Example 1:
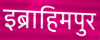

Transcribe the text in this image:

इब्राहिमपुर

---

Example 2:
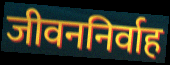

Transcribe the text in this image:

जीवननिर्वाह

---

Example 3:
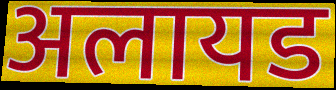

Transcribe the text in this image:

अलायड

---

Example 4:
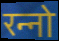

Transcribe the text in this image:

रन्नो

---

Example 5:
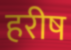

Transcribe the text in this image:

हरीष